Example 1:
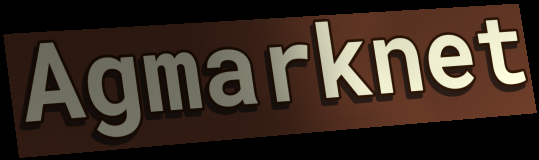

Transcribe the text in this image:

Agmarknet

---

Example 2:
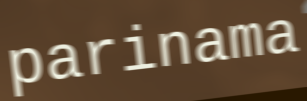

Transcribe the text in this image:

parinama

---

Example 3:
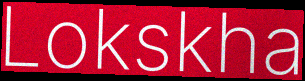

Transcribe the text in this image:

Lokskha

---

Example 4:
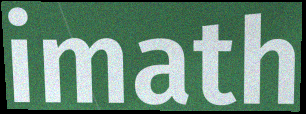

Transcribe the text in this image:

imath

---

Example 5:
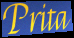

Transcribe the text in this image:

Prita